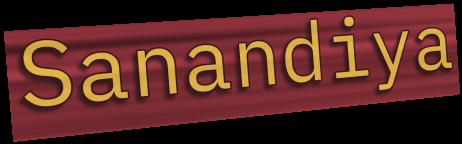
Sanandiya